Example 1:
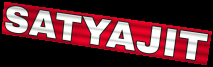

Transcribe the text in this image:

SATYAJIT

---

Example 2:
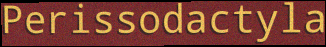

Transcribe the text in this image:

Perissodactyla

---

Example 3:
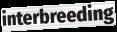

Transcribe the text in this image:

interbreeding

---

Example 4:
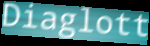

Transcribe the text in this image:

Diaglott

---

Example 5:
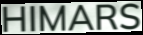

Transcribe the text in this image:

HIMARS